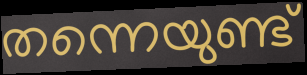
തന്നെയുണ്ട്